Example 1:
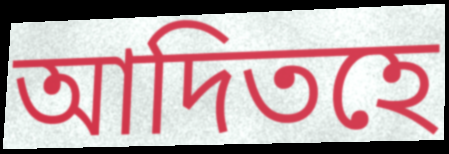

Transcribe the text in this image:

আদিতহে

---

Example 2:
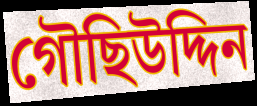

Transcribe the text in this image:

গৌছিউদ্দিন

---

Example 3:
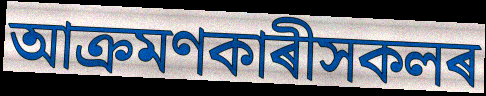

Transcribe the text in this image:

আক্ৰমণকাৰীসকলৰ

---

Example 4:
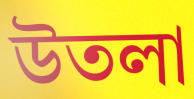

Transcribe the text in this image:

উতলা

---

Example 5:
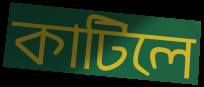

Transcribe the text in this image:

কাটিলে